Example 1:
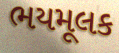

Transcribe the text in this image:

ભયમૂલક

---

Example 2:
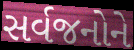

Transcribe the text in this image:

સર્વજનોને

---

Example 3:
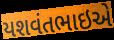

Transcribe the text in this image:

યશવંતભાઇએ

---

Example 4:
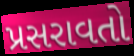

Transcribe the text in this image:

પ્રસરાવતો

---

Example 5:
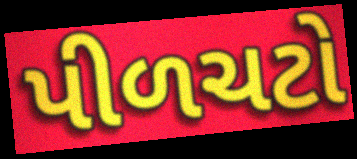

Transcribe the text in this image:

પીળચટો